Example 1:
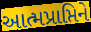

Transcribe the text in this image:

આત્મપ્રાપ્તિને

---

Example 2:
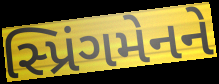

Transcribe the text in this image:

સ્પ્રિંગમેનને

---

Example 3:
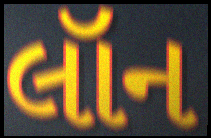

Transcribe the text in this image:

લૉન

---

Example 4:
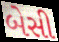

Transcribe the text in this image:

બેસી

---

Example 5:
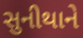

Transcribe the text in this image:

સુનીથાને